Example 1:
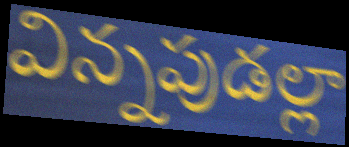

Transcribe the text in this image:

విన్నపుడల్లా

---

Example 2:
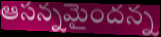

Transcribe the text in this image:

ఆసన్నమైందన్న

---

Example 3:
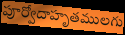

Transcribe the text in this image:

పూర్వోదాహృతములగు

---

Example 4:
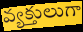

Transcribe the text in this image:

వ్యక్తులుగా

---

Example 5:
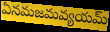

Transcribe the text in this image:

ఏనమజమవ్యయమ్